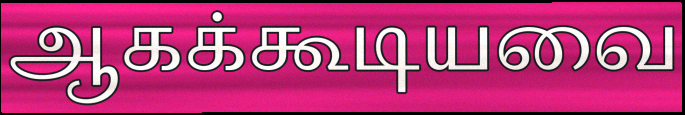
ஆகக்கூடியவை